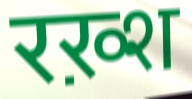
रख़्श